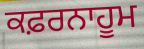
ਕਫ਼ਰਨਾਹੂਮ